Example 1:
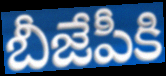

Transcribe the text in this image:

బీజేపీకి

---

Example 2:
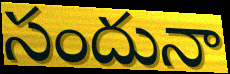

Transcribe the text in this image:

సందునా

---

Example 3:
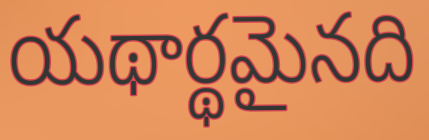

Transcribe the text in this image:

యథార్థమైనది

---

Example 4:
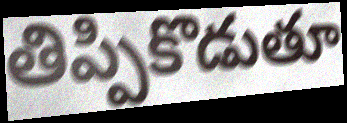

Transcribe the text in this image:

తిప్పికొడుతూ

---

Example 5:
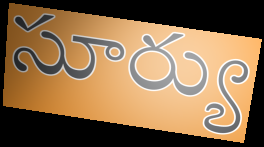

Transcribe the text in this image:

సూర్యు